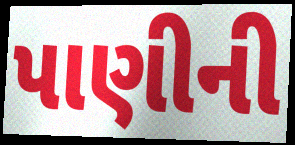
પાણીની